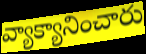
వ్యాక్యానించారు